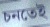
চনতেই